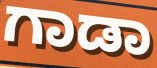
ಗಾಡಾ